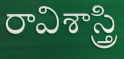
రావిశాస్త్రి